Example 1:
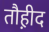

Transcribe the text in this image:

तौह़ीद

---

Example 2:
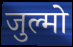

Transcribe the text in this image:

जुल्मो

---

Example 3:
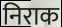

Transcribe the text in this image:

निराक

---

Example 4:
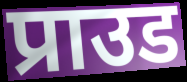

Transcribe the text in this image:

प्राउड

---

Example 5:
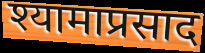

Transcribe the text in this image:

श्यामाप्रसाद